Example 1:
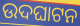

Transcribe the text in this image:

ଉଦଘାଟନ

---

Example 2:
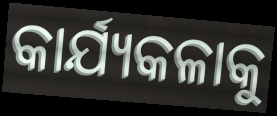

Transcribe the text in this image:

କାର୍ଯ୍ୟକଳାକୁ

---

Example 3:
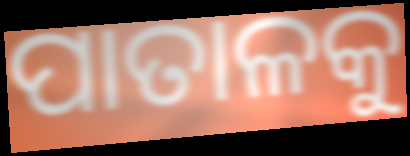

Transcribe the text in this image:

ପାତାଳକୁ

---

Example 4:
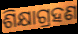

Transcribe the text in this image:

ଶିକ୍ଷାଗ୍ରହଣ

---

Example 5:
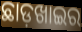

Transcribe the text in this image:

ଛାଡ଼ଖାଇର